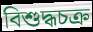
বিশুদ্ধচক্র